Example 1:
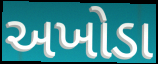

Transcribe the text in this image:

અખોડા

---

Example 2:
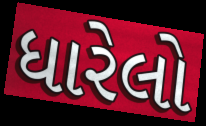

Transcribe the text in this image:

ધારેલો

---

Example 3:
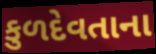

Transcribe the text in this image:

કુળદેવતાના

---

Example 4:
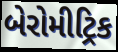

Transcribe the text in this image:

બેરોમીટ્રિક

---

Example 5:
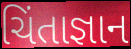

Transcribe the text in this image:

ચિંતાજ્ઞાન